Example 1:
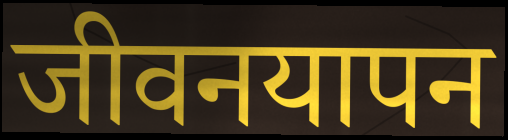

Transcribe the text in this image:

जीवनयापन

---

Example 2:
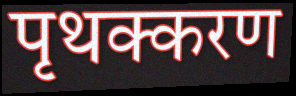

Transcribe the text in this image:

पृथक्करण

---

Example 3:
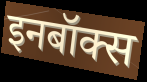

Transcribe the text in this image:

इनबॉक्स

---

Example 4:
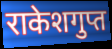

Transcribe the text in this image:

राकेशगुप्त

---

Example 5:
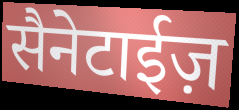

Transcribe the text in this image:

सैनेटाईज़